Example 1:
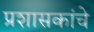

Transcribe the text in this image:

प्रशासकांचे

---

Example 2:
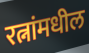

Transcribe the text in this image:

रत्नांमधील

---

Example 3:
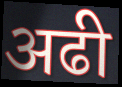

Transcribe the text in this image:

अढी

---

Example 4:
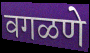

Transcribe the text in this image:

वगळणे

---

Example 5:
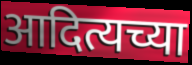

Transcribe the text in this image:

आदित्यच्या